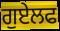
ਗੁਏਲਫ